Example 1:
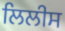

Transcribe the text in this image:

ਲਿਲੀਸ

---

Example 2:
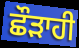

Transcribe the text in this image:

ਛੌੜਾਹੀ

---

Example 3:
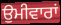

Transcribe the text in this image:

ਉਮੀਵਾਰਾਂ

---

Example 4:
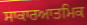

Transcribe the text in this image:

ਸਾਕਾਰਆਤਮਿਕ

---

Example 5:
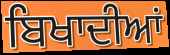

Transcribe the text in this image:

ਬਿਖਾਦੀਆਂ